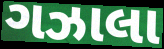
ગઝાલા